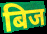
बिज